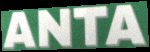
ANTA